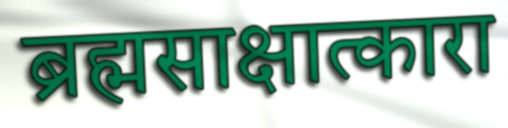
ब्रह्मसाक्षात्कारा